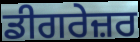
ਡੀਗਰੇਜ਼ਰ